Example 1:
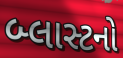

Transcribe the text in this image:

બ્લાસ્ટનો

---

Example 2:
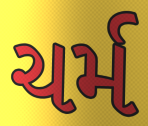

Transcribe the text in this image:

ચર્મ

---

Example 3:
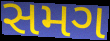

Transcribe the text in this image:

સમગ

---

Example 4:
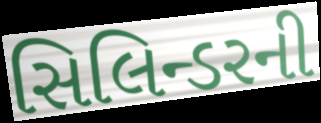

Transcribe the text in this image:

સિલિન્ડરની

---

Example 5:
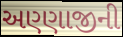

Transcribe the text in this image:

અણ્ણાજીની